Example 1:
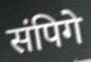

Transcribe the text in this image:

संपिगे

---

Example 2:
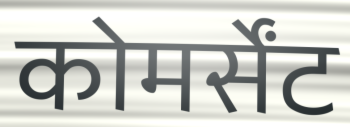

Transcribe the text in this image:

कोमर्सेंट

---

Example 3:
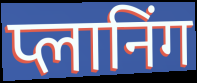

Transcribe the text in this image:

प्‍लानिंग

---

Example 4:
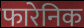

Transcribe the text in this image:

फारेनिक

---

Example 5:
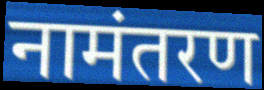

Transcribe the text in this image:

नामंतरण